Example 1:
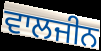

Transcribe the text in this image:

ਵਾਲਜੀਨ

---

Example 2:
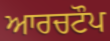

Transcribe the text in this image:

ਆਰਚਟੌਪ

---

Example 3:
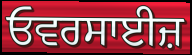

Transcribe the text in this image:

ਓਵਰਸਾਈਜ਼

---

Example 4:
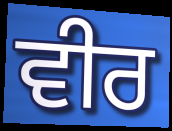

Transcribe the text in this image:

ਵੀਰ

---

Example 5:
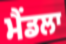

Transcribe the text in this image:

ਮੈਂਡਲਾ